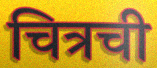
चित्रची